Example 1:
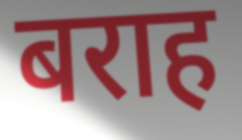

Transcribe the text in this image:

बराह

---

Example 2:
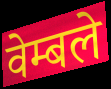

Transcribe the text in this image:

वेम्बले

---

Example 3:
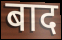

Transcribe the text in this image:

बाद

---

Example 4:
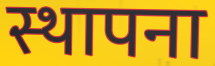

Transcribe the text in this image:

स्थापना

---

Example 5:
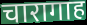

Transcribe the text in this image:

चारागाह